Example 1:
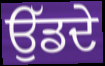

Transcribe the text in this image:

ਉੱਡਦੇ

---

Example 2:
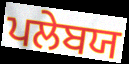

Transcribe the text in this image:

ਪਲੇਬਯ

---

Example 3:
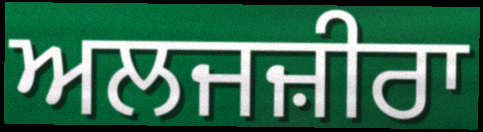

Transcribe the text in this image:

ਅਲਜਜ਼ੀਰਾ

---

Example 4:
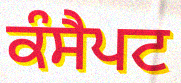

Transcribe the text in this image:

ਕੰਸੈਪਟ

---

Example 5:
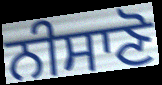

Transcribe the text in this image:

ਨੀਸਾਣੋ